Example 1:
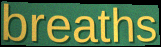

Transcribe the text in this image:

breaths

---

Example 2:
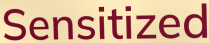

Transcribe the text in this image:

Sensitized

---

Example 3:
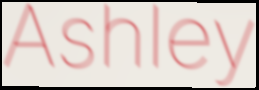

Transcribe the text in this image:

Ashley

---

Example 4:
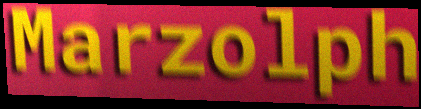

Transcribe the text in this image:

Marzolph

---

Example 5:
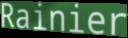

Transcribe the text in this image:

Rainier